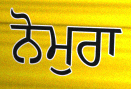
ਨੋਮੁਰਾ